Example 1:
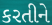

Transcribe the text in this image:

કરતીને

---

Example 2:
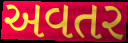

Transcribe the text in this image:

અવતર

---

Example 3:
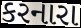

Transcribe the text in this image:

કરનારા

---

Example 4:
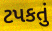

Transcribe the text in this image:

ટપકતું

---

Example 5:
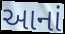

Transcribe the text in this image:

આનાં